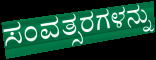
ಸಂವತ್ಸರಗಳನ್ನು